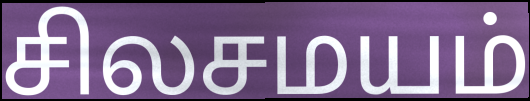
சிலசமயம்